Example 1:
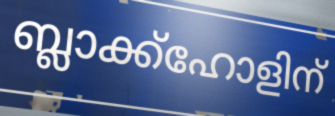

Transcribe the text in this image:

ബ്ലാക്ക്ഹോളിന്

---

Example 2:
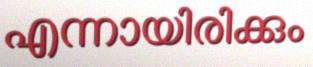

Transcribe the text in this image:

എന്നായിരിക്കും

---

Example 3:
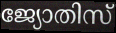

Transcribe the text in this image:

ജ്യോതിസ്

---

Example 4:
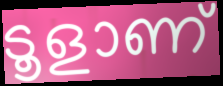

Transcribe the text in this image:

ടൂളാണ്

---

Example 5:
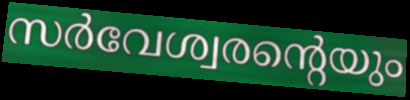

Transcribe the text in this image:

സർവേശ്വരന്റെയും